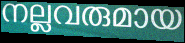
നല്ലവരുമായ